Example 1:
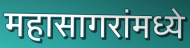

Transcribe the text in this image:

महासागरांमध्ये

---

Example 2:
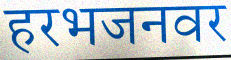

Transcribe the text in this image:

हरभजनवर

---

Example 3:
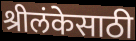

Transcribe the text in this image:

श्रीलंकेसाठी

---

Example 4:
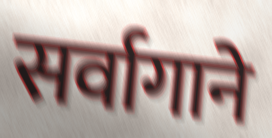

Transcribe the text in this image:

सर्वागाने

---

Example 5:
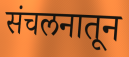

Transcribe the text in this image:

संचलनातून